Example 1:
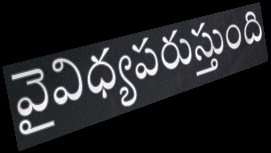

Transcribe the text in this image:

వైవిధ్యపరుస్తుంది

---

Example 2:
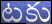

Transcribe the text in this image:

టకు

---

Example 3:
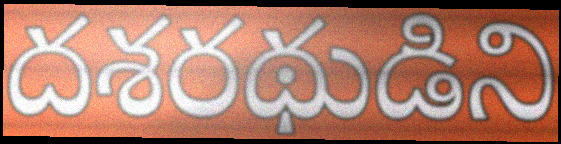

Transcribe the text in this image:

దశరథుడిని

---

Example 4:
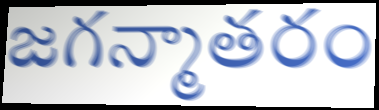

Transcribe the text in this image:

జగన్మాతరం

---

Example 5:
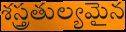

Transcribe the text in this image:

శస్త్రతుల్యమైన